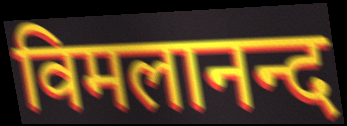
विमलानन्द